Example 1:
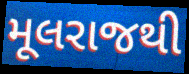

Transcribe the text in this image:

મૂલરાજથી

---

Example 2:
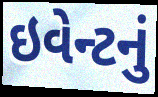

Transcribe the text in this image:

ઇવેન્ટનું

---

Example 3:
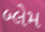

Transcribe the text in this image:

બ્લેમ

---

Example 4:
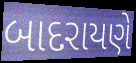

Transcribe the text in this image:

બાદરાયણે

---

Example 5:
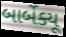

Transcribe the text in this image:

બાર્બેક્યૂ